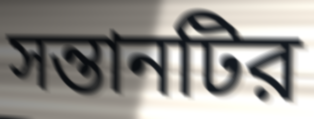
সন্তানটির